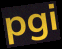
pgi